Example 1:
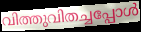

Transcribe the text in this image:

വിത്തുവിതച്ചപ്പോൾ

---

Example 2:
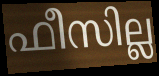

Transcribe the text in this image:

ഫീസില്ല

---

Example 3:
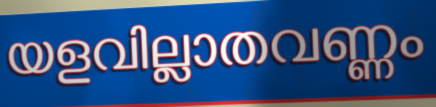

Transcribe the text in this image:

യളവില്ലാതവണ്ണം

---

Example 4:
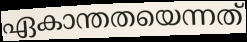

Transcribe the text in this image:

ഏകാന്തതയെന്നത്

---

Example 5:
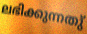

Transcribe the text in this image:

ലഭിക്കുന്നതു്